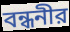
বন্ধনীর